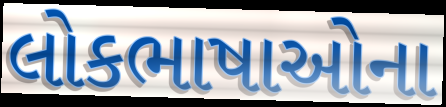
લોકભાષાઓના